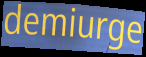
demiurge